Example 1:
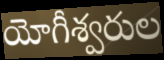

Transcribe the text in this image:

యోగీశ్వరుల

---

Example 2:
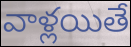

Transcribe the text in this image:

వాళ్లయితే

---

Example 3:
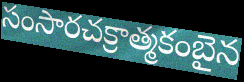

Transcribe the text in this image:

సంసారచక్రాత్మకంబైన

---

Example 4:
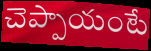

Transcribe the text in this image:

చెప్పాయంటే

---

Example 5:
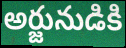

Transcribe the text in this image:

అర్జునుడికి